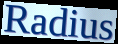
Radius